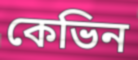
কেভিন